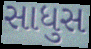
સાધુસ